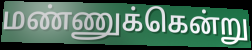
மண்ணுக்கென்று